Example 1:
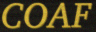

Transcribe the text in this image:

COAF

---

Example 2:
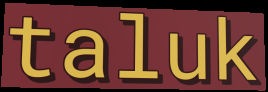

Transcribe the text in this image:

taluk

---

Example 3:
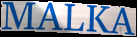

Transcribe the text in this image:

MALKA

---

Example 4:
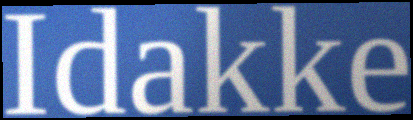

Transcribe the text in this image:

Idakke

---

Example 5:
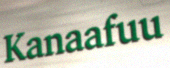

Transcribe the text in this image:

Kanaafuu